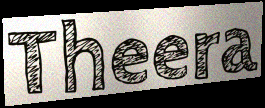
Theera